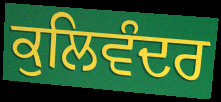
ਕੁਲਿਵੰਦਰ